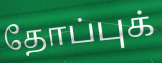
தோப்புக்